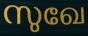
സുഖേ